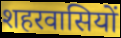
शहरवासियों